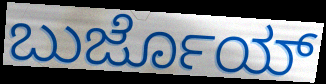
ಬುರ್ಜೊಯ್